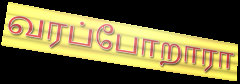
வரப்போறாரா